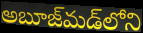
అబూజ్‌మడ్‌లోని